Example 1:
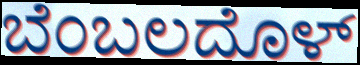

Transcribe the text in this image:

ಬೆಂಬಲದೊಳ್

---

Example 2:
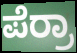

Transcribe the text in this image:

ಪೆರ್ರಾ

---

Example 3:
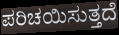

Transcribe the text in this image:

ಪರಿಚಯಿಸುತ್ತದೆ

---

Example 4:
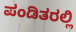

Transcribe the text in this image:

ಪಂಡಿತರಲ್ಲಿ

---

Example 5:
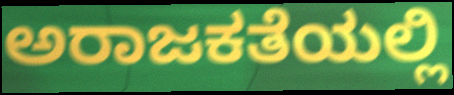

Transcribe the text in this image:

ಅರಾಜಕತೆಯಲ್ಲಿ